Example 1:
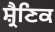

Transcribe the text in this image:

ਸ਼੍ਰੈਣਿਕ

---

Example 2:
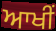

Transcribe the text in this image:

ਆਖੀਂ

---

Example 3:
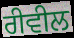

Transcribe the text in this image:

ਰੀਵੀਲ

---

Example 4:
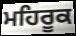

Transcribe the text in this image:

ਮਹਿਰੂਕ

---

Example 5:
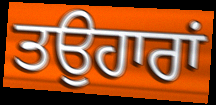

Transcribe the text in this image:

ਤਉਹਾਰਾਂ